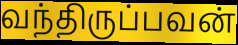
வந்திருப்பவன்